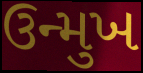
ઉન્મુખ